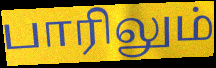
பாரிலும்